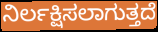
ನಿರ್ಲಕ್ಷಿಸಲಾಗುತ್ತದೆ